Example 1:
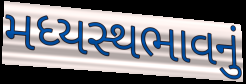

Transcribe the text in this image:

મધ્યસ્થભાવનું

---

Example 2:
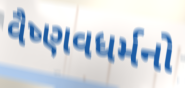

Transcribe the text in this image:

વૈષ્ણવધર્મનો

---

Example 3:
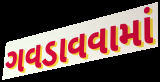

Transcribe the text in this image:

ગવડાવવામાં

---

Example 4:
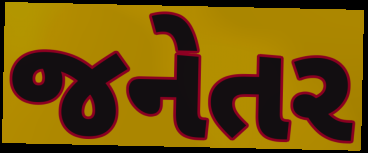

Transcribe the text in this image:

જનેતર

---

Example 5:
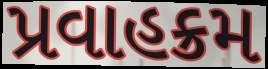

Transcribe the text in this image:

પ્રવાહક્રમ